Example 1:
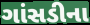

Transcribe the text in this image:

ગાંસડીના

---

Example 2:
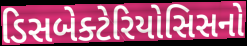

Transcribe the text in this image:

ડિસબેક્ટેરિયોસિસનો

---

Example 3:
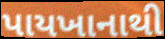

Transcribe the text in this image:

પાયખાનાથી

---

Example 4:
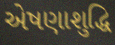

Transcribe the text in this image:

એષણાશુદ્ધિ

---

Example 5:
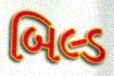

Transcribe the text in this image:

બિલ્ડ